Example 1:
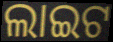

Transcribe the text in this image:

ଲାଇଟ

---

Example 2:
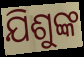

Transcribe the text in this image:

ଯିଶୁଙ୍କ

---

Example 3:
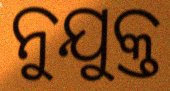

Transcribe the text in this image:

ନୁଯୁକ୍ତ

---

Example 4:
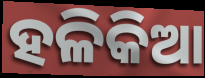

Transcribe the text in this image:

ହଳିକିଆ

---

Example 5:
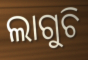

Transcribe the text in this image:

ଲାଗୁଚି